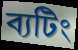
ব্যটিং